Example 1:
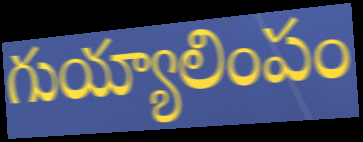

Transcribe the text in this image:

గుయ్యాలింపం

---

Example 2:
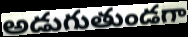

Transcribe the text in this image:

అడుగుతుండగా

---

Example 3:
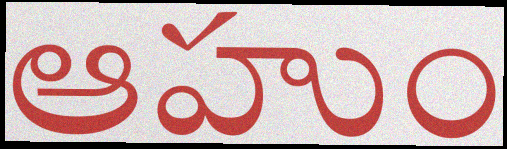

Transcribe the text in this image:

ఆహుం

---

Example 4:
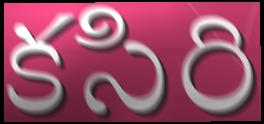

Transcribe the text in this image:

కసిరి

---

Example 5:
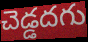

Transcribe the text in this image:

చెడ్డదగు